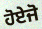
ਹੋਏਜੋ